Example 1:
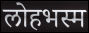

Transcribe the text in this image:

लोहभस्म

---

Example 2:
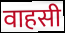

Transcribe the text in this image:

वाहसी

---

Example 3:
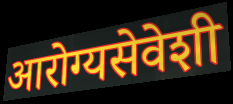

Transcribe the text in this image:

आरोग्यसेवेशी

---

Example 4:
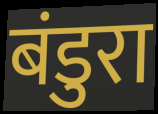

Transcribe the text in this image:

बंडुरा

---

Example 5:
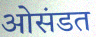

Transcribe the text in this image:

ओसंडत